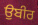
ਉਬੀਰ